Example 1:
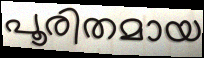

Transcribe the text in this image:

പൂരിതമായ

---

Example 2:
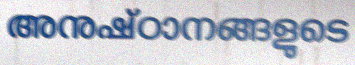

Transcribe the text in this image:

അനുഷ്‌ഠാനങ്ങളുടെ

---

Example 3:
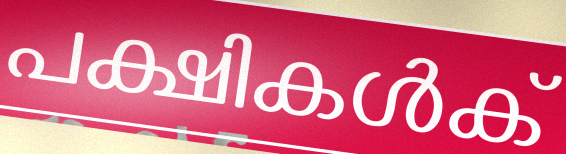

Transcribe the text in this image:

പക്ഷികൾക്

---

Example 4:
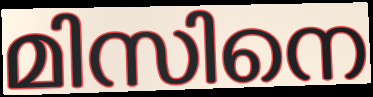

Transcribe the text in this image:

മിസിനെ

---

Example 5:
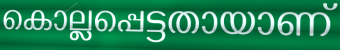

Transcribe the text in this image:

കൊല്ലപ്പെട്ടതായാണ്